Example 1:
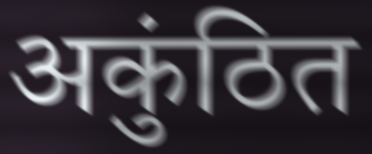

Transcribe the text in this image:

अकुंठित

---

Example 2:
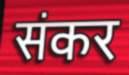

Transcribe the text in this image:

संकर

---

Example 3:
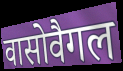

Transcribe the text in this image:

वासोवैगल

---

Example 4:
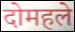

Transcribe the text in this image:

दोमहले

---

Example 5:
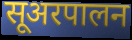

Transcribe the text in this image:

सूअरपालन